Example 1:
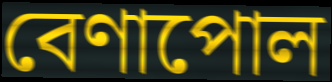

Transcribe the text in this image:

বেণাপোল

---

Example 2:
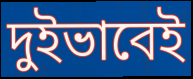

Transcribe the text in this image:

দুইভাবেই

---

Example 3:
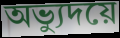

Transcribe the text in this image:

অভ্যুদয়ে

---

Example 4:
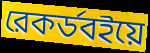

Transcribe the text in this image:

রেকর্ডবইয়ে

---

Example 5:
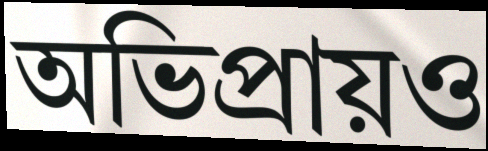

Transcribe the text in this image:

অভিপ্রায়ও